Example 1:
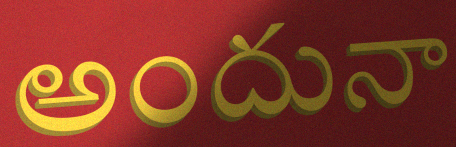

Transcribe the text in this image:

అందునా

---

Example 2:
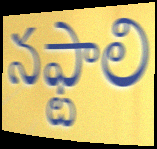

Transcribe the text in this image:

నఫ్టాలి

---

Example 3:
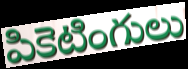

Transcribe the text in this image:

పికెటింగులు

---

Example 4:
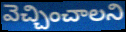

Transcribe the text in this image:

వెచ్చించాలని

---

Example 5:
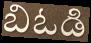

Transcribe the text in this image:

బిఓడి